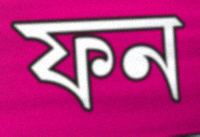
ফন